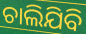
ଚାଲିଯିବି